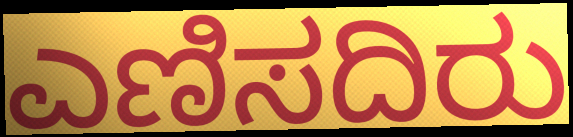
ಎಣಿಸದಿರು